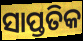
ସାପ୍ତତିକ